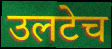
उलटेच